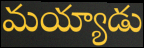
మయ్యాడు